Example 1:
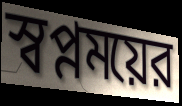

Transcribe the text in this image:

স্বপ্নময়ের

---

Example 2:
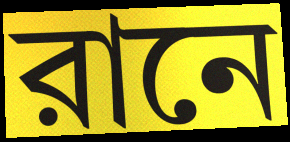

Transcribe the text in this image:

রানে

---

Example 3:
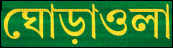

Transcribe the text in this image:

ঘোড়াওলা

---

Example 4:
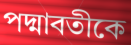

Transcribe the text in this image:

পদ্মাবতীকে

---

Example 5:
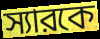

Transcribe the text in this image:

স্যারকে